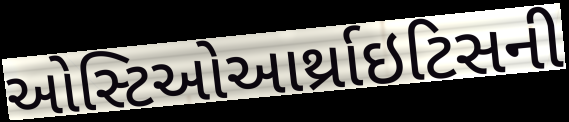
ઓસ્ટિઓઆર્થ્રાઇટિસની